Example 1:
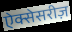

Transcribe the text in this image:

ऐक्सेसरीज़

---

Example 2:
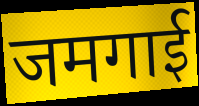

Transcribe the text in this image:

जमगाई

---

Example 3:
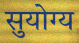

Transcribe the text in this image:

सुयोग्य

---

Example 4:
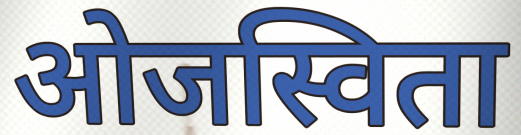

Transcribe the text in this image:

ओजस्विता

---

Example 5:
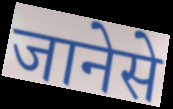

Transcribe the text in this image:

जानेसे